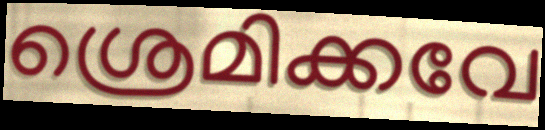
ശ്രെമിക്കവേ